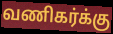
வணிகர்க்கு